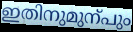
ഇതിനുമുന്പും